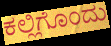
ಕಲ್ಲಿಗೊಂದು